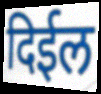
दिईल